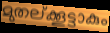
മുതല്ക്കൂട്ടാകും